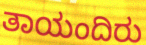
ತಾಯಂದಿರು